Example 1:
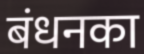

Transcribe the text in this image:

बंधनका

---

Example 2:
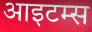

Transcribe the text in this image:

आइटम्‍स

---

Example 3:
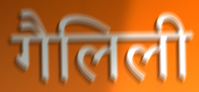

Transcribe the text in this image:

गैलिली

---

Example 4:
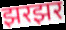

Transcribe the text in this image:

झरझर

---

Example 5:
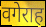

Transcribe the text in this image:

वगेराह